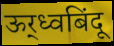
ऊर्ध्वबिंदू